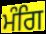
ਮੰਗਿ